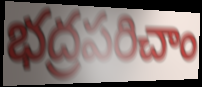
భద్రపరిచాం